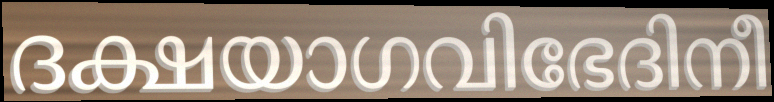
ദക്ഷയാഗവിഭേദിനീ